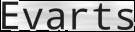
Evarts